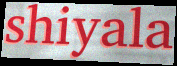
shiyala